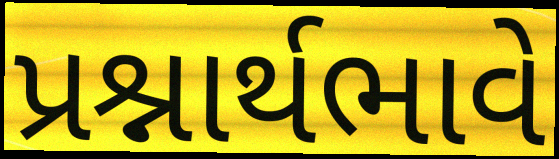
પ્રશ્નાર્થભાવે